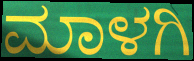
ಮಾಳಗಿ